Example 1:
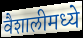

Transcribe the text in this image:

वैशालीमध्ये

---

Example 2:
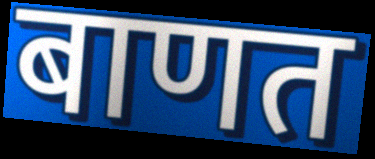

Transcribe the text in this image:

बाणत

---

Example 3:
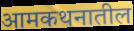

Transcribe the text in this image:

आमकथनातील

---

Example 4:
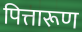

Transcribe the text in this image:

पित्तारूण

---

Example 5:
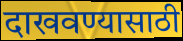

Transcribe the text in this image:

दाखवण्यासाठी